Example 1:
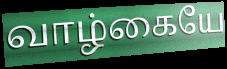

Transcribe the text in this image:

வாழ்கையே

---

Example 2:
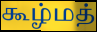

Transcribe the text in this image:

கூழ்மத்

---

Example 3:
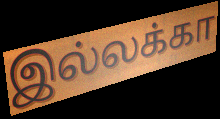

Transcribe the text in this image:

இல்லக்கா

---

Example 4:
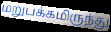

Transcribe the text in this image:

மறுபக்கமிருந்து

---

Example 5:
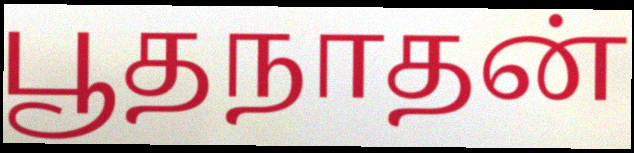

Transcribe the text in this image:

பூதநாதன்